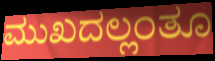
ಮುಖದಲ್ಲಂತೂ